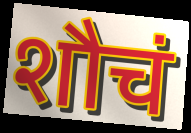
शौचं